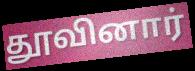
தூவினார்